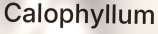
Calophyllum